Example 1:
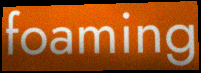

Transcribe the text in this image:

foaming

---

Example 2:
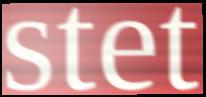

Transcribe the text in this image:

stet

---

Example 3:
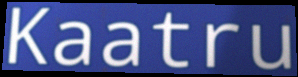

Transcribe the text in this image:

Kaatru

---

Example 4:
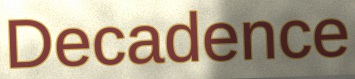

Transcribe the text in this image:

Decadence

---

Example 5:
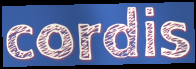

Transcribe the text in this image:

cordis